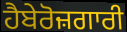
ਹੈਬੇਰੋਜ਼ਗਾਰੀ